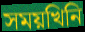
সময়খিনি